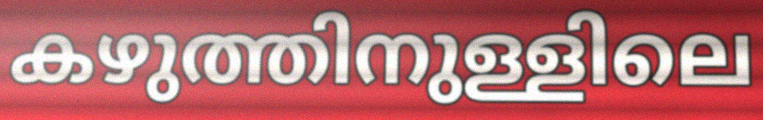
കഴുത്തിനുള്ളിലെ